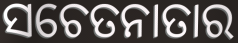
ସଚେତନାତାର